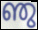
ഞു